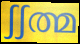
ഽഽത്മ